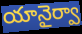
యానైర్వా